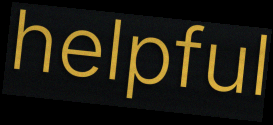
helpful